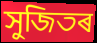
সুজিতৰ